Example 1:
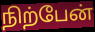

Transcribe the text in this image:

நிற்பேன்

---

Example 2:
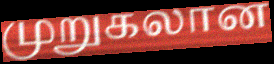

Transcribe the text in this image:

முறுகலான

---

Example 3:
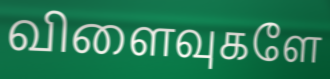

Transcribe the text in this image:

விளைவுகளே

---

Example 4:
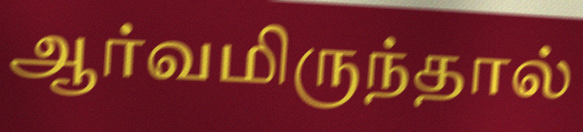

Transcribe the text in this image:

ஆர்வமிருந்தால்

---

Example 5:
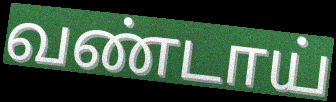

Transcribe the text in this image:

வண்டாய்